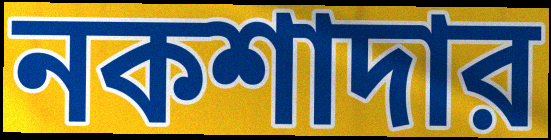
নকশাদার